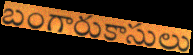
బంగారుకాసులు